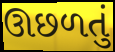
ઊછળતું